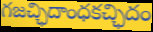
గజచ్ఛిదాంధకచ్ఛిదం